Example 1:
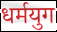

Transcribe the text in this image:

धर्मयुग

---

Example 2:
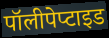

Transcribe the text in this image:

पॉलीपेप्टाइड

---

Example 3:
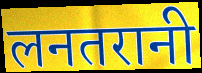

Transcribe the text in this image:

लनतरानी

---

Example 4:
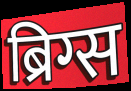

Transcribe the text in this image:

ब्रिग्स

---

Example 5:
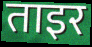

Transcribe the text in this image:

ताइर